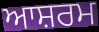
ਆਸ਼ਰਮ